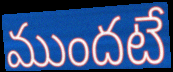
ముందటే